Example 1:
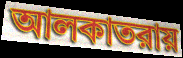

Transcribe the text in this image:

আলকাতরায়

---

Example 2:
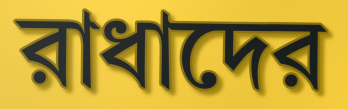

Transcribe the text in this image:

রাধাদের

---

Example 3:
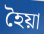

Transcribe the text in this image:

হৈয়া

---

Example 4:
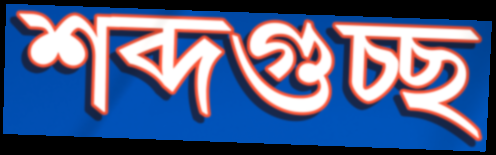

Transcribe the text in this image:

শব্দগুচ্ছ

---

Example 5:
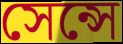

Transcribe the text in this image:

সেন্সে